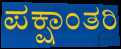
ಪಕ್ಷಾಂತರಿ